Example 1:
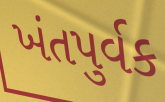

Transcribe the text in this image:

ખંતપુર્વક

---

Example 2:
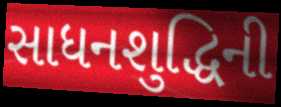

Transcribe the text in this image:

સાધનશુદ્ધિની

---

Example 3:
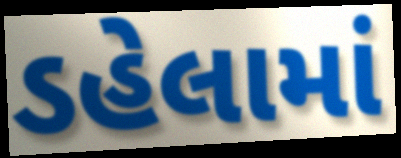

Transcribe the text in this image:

ડહેલામાં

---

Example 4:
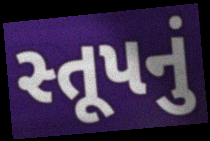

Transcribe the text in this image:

સ્તૂપનું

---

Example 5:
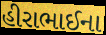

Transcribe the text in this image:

હીરાભાઈના